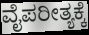
ವೈಪರೀತ್ಯಕ್ಕೆ